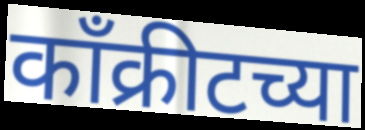
काँक्रीटच्या